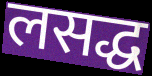
लसद्ध